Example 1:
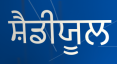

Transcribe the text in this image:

ਸ਼ੈਡੀਯੂਲ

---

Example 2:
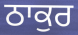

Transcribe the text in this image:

ਠਾਕੁਰ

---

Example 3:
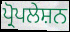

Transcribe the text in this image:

ਪ੍ਰੋਪਲੇਸ਼ਨ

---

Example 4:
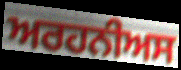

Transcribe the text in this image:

ਅਰਹਨੀਅਸ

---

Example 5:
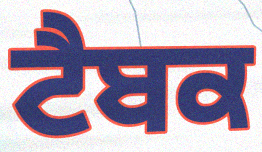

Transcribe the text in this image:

ਟੈਬਕ